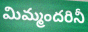
మిమ్మందరినీ